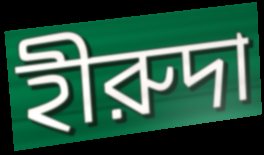
হীরুদা